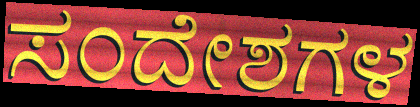
ಸಂದೇಶಗಳ